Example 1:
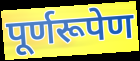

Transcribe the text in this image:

पूर्णरूपेण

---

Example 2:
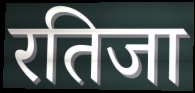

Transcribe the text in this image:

रतिजा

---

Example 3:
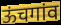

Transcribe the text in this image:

ऊंचगांव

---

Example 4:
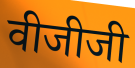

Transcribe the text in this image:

वीजीजी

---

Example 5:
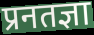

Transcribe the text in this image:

प्रनतज्ञा